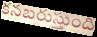
కనబరుస్తుంది